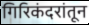
गिरिकंदरांतून